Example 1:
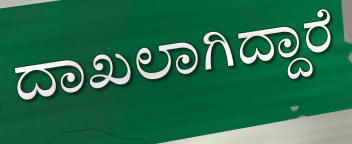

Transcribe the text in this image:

ದಾಖಲಾಗಿದ್ದಾರೆ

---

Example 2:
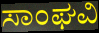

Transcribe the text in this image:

ಸಾಂಘವಿ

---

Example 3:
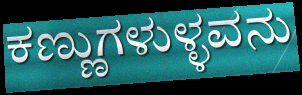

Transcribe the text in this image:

ಕಣ್ಣುಗಳುಳ್ಳವನು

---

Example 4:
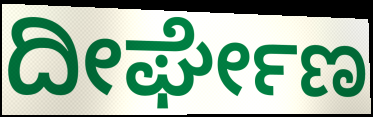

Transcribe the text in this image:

ದೀರ್ಘೇಣ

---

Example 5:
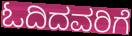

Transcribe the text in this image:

ಓದಿದವರಿಗೆ